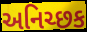
અનિચ્છક